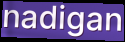
nadigan